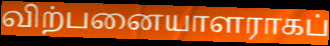
விற்பனையாளராகப்